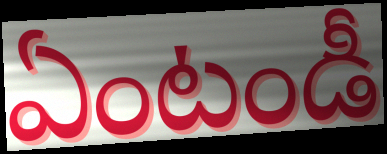
ఏంటండీ